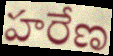
హరేణ